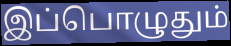
இப்பொழுதும்